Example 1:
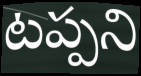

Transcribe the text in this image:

టప్పని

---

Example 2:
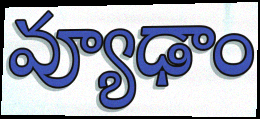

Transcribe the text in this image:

వ్యూఢాం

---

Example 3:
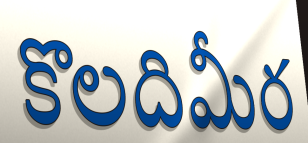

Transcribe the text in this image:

కొలదిమీర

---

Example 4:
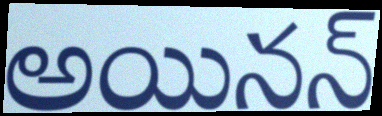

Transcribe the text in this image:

అయినన్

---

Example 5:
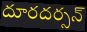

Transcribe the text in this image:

దూరదర్సన్